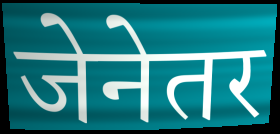
जेनेतर